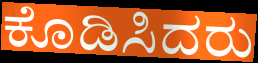
ಕೊಡಿಸಿದರು